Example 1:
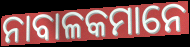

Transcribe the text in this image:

ନାବାଳକମାନେ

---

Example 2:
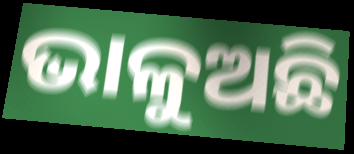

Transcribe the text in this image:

ଭାଳୁଅଛି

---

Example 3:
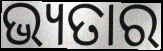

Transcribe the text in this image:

ଭ୍ୟତାର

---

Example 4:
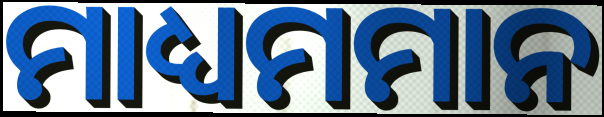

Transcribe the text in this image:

ମାଧ୍ୟମମାନ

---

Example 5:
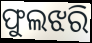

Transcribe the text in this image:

ଫୁଲଝରି